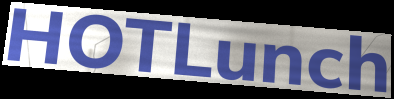
HOTLunch